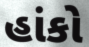
હાંકો